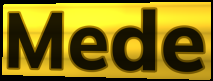
Mede